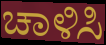
ಚಾಳಿಸಿ